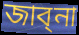
জাব্‌না